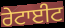
ਰੇਟਾਈਟ